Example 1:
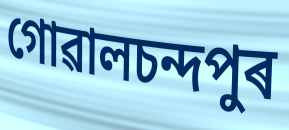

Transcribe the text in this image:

গোৱালচন্দপুৰ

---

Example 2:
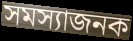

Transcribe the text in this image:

সমস্যাজনক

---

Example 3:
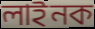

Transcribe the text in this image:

লাইনক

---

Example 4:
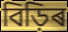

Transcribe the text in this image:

বিড়িৰ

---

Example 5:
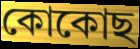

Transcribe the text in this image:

কোকোছ